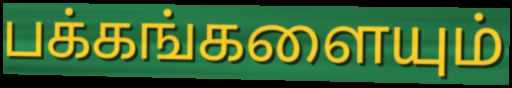
பக்கங்களையும்